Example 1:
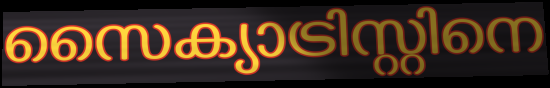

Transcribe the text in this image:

സൈക്യാട്രിസ്റ്റിനെ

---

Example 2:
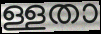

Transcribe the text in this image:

ള്ളതാ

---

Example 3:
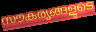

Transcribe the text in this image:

സൗകര്യങ്ങളുടെ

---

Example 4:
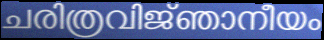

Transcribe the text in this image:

ചരിത്രവിജ്‌ഞാനീയം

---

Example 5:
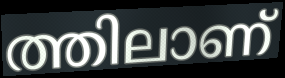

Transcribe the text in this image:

ത്തിലാണ്